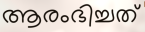
ആരംഭിച്ചത്